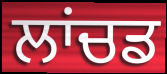
ਲਾਂਚਡ